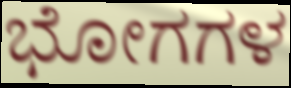
ಭೋಗಗಳ